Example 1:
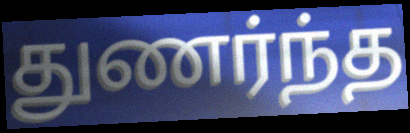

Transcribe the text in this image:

துணர்ந்த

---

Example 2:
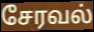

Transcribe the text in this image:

சேரவல்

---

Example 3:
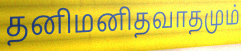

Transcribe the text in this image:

தனிமனிதவாதமும்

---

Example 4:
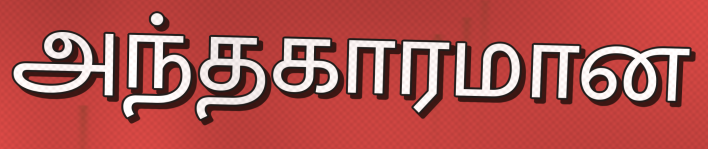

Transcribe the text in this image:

அந்தகாரமான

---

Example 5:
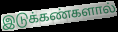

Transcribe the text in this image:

இடுக்கண்களால்